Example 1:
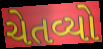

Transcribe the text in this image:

ચેતવ્યો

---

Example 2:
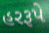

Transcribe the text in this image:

હરરૂપે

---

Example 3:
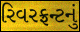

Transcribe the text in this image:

રિવરફ્રન્ટનું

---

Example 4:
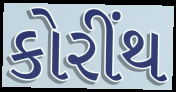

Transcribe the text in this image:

કોરીંથ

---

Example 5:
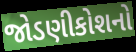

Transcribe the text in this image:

જોડણીકોશનો